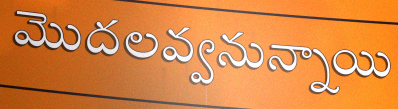
మొదలవ్వనున్నాయి